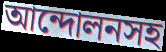
আন্দোলনসহ